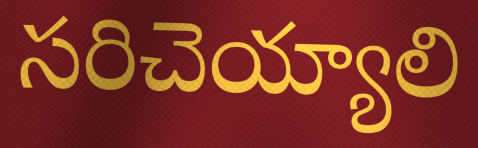
సరిచెయ్యాలి